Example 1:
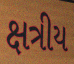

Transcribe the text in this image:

ક્ષત્રીય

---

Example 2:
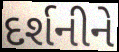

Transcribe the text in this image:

દર્શનીને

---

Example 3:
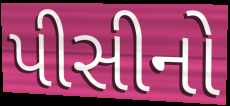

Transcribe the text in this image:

પીસીનો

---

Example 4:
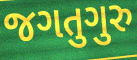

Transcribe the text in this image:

જગતુગુરુ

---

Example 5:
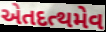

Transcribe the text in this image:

એતદત્થમેવ